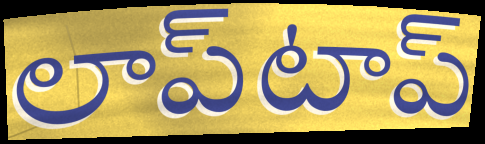
లాప్‌టాప్